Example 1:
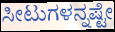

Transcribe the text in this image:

ಸೀಟುಗಳನ್ನಷ್ಟೇ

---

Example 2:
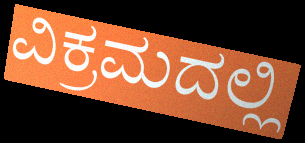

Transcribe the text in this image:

ವಿಕ್ರಮದಲ್ಲಿ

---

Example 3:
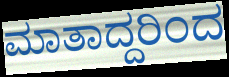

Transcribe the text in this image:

ಮಾತಾದ್ದರಿಂದ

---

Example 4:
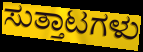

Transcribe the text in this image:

ಸುತ್ತಾಟಗಳು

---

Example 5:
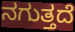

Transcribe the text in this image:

ನಗುತ್ತದೆ